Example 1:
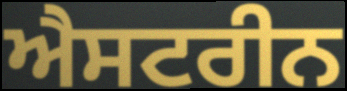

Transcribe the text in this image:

ਐਸਟਰੀਨ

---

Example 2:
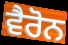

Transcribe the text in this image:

ਵੈਰੋਨ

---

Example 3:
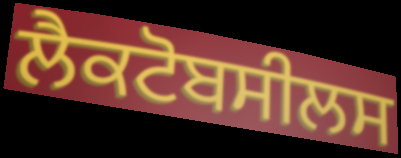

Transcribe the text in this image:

ਲੈਕਟੋਬਸੀਲਸ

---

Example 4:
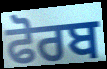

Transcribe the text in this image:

ਫੋਰਬ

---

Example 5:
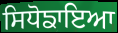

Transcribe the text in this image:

ਸਿਧੋਙਾਇਆ